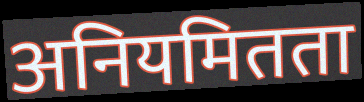
अनियमितता